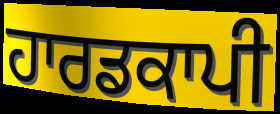
ਹਾਰਡਕਾਪੀ